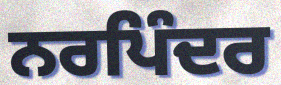
ਨਰਪਿੰਦਰ